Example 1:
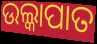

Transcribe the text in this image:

ଉଲ୍କାପାତ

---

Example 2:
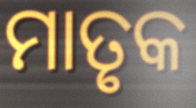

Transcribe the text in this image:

ମାତୃକ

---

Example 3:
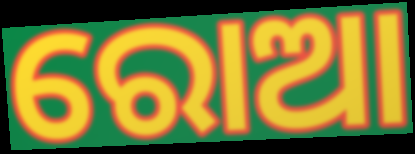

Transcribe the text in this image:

ରୋଆ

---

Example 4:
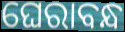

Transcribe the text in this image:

ଘେରାବନ୍ଧ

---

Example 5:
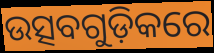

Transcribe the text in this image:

ଉତ୍ସବଗୁଡ଼ିକରେ